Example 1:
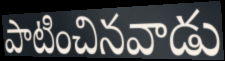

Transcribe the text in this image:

పాటించినవాడు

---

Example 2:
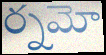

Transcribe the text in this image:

ర్నమో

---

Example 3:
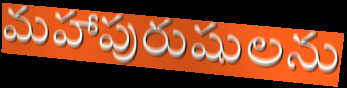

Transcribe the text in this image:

మహాపురుషులను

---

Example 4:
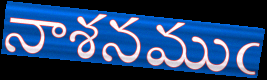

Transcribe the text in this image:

నాశనముఁ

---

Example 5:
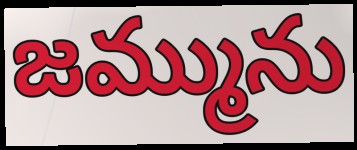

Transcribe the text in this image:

జమ్మును